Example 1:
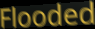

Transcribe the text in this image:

Flooded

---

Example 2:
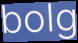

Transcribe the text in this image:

bolg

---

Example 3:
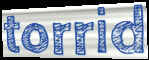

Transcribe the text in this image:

torrid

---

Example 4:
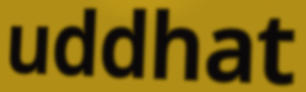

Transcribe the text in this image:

uddhat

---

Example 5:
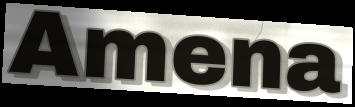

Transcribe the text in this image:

Amena